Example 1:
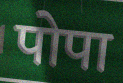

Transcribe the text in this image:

पोपा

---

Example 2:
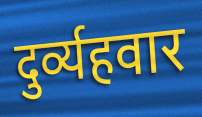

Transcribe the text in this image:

दुर्व्यहवार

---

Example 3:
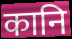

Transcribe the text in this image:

कानि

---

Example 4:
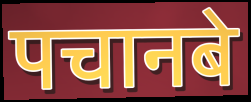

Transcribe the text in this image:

पचानबे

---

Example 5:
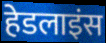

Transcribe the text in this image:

हेडलाइंस